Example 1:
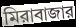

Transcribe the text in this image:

মিরাবাজার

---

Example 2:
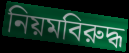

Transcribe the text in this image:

নিয়মবিরুদ্ধ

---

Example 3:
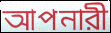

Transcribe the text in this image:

আপনারী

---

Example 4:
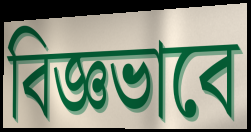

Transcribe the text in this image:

বিজ্ঞভাবে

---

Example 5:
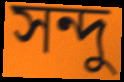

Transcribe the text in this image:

সন্দু